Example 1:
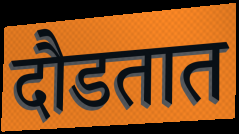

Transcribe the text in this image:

दौडतात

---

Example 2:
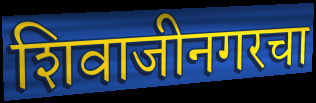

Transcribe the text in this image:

शिवाजीनगरचा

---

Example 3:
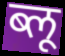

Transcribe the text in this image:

ब्लू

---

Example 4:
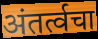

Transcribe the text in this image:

अंतर्त्वचा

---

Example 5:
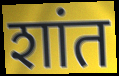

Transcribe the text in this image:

शांत